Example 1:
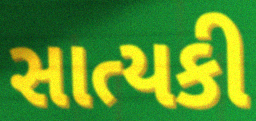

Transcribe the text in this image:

સાત્યકી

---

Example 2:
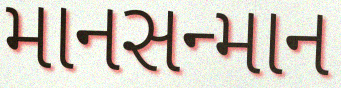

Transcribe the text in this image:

માનસન્માન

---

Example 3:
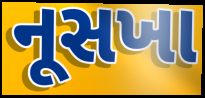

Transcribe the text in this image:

નૂસખા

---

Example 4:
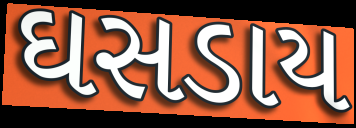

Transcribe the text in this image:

ઘસડાય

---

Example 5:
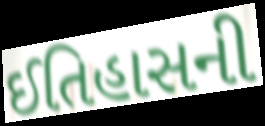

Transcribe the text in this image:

ઈતિહાસની